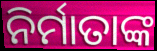
ନିର୍ମାତାଙ୍କ